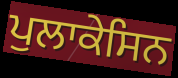
ਪੁਲਾਕੇਸਿਨ